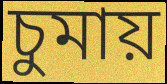
চুমায়